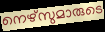
നെഴ്സുമാരുടെ